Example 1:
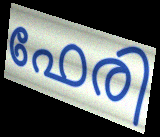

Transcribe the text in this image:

ഫേരി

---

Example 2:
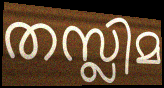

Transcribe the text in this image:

തസ്ലിമ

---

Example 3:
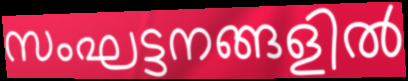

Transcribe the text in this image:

സംഘട്ടനങ്ങളിൽ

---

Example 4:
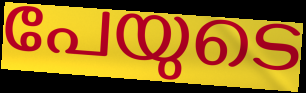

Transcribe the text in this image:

പേയുടെ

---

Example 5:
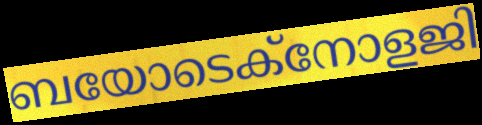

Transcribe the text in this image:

ബയോടെക്നോളജി